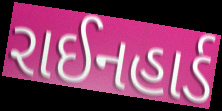
રાઈનહાર્ડ